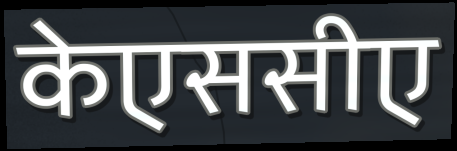
केएससीए